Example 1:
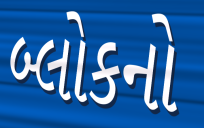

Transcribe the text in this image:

બ્લોકનો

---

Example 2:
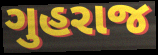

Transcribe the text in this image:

ગુહરાજ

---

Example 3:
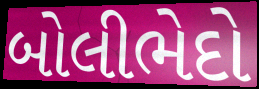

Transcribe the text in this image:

બોલીભેદો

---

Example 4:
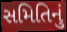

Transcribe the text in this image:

સમિતિનું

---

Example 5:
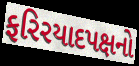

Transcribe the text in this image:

ફરિરયાદપક્ષનો